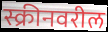
स्क्रीनवरील